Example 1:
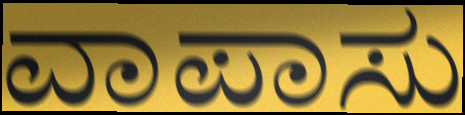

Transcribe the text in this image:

ವಾಪಾಸು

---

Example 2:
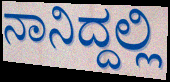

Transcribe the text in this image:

ನಾನಿದ್ದಲ್ಲಿ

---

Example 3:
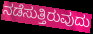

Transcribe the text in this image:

ನಡೆಸುತ್ತಿರುವುದು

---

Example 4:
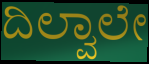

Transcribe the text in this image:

ದಿಲ್ವಾಲೇ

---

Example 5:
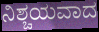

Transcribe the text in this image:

ನಿಶ್ಚಯವಾದ